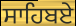
ਸਾਹਿਬਏ